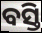
ବସ୍ତି